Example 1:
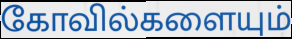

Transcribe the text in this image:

கோவில்களையும்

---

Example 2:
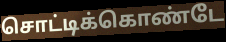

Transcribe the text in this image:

சொட்டிக்கொண்டே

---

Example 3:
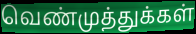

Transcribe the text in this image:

வெண்முத்துக்கள்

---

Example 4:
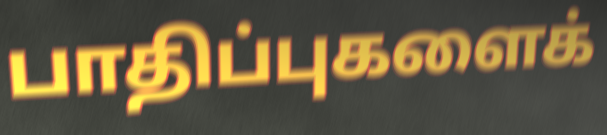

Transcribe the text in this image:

பாதிப்புகளைக்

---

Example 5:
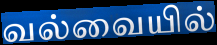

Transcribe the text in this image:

வல்வையில்